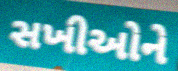
સખીઓને